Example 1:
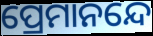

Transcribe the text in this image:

ପ୍ରେମାନନ୍ଦେ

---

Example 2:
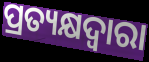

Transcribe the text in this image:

ପ୍ରତ୍ୟକ୍ଷଦ୍ବାରା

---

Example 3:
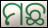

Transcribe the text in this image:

ମଛ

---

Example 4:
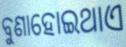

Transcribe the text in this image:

ବୁଣାହୋଇଥାଏ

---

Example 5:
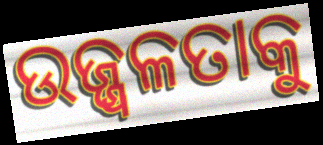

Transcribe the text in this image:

ଉଜ୍ଜ୍ୱଳତାକୁ